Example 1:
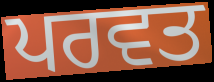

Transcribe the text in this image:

ਪਰਵਤ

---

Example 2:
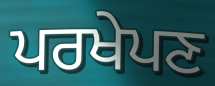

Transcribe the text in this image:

ਪਰਖੇਪਣ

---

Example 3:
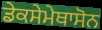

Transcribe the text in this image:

ਡੇਕਸੇਮੇਥਾਸੋਨ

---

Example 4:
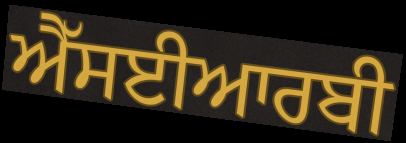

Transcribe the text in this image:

ਐੱਸਈਆਰਬੀ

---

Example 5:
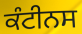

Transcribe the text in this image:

ਕੰਟੀਨਸ